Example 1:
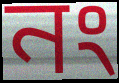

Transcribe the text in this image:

নং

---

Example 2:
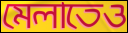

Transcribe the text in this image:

মেলাতেও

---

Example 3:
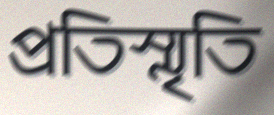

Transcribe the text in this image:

প্রতিস্মৃতি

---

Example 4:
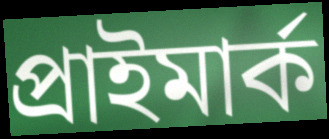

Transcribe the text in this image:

প্রাইমার্ক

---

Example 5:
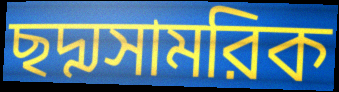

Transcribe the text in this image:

ছদ্মসামরিক